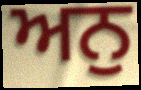
ਅਨੁ